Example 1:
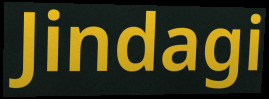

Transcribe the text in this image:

Jindagi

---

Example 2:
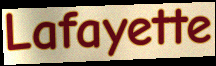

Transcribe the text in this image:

Lafayette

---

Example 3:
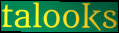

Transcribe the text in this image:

talooks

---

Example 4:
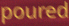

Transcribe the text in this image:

poured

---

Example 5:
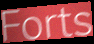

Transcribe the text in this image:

Forts